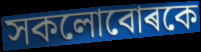
সকলোবোৰকে